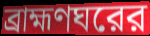
ব্রাহ্মণঘরের